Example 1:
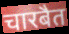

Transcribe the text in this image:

चारबैत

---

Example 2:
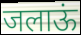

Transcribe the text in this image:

जलाऊं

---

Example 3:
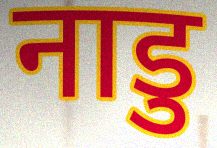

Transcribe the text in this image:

नाडु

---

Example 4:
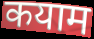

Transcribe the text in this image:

कयाम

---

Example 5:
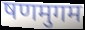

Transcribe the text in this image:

षणमुगम